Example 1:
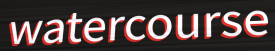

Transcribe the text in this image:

watercourse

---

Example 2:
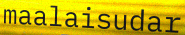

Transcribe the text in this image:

maalaisudar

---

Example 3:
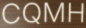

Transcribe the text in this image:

CQMH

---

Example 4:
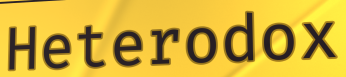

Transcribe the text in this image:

Heterodox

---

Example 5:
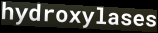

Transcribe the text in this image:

hydroxylases